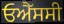
ਓਐੱਸਸੀ